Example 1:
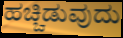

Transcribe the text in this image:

ಹಚ್ಚಿಡುವುದು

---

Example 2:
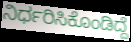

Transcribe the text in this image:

ನಿರ್ಧರಿಸಿಕೊಂಡಿದ್ದೆ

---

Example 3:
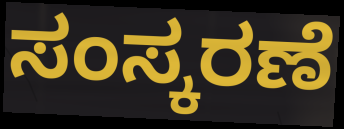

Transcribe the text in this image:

ಸಂಸ್ಕರಣೆ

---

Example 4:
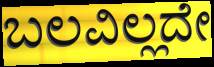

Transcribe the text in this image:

ಬಲವಿಲ್ಲದೇ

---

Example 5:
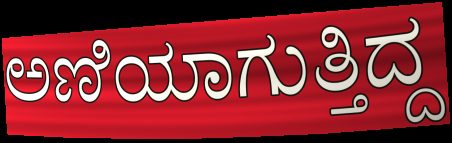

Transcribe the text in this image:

ಅಣಿಯಾಗುತ್ತಿದ್ದ